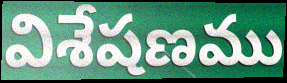
విశేషణము